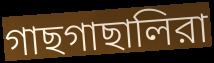
গাছগাছালিরা